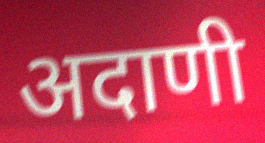
अदाणी